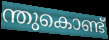
ന്തുകൊണ്ട്